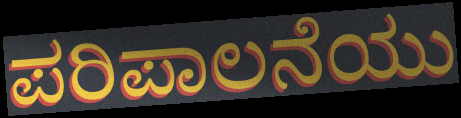
ಪರಿಪಾಲನೆಯು